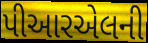
પીઆરએલની